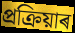
প্ৰক্ৰিয়াৰ